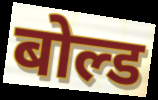
बोल्ड